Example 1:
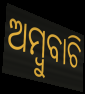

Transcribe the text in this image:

ଅମ୍ବୁବାଚି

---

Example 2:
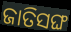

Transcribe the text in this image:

ଜାତିସଙ୍ଘ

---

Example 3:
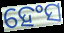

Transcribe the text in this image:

ହେଂସ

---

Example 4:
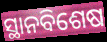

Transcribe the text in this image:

ସ୍ଥାନବିଶେଷ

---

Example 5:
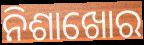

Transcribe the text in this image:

ନିଶାଖୋର